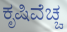
ಕೃಷಿವೆಚ್ಚ